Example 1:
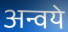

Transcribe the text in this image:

अन्वये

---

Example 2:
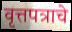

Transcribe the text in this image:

वृत्तपत्राचे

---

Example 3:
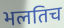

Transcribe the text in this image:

भलतिच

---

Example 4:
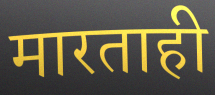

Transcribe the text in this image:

मारताही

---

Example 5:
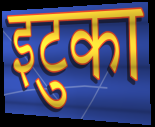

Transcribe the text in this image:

इटुका